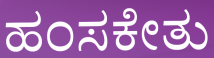
ಹಂಸಕೇತು